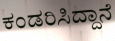
ಕಂಡರಿಸಿದ್ದಾನೆ